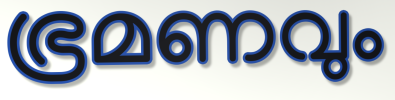
ഭ്രമണവും